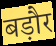
बड़ौर